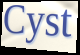
Cyst